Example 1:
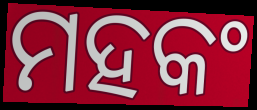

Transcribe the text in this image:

ମହକଂ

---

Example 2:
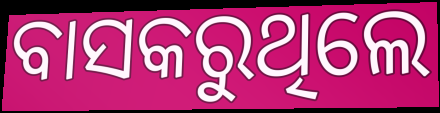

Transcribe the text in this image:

ବାସକରୁଥିଲେ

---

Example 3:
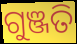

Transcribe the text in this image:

ଗୁଞ୍ଜତି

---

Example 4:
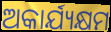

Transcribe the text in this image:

ଅକାର୍ଯ୍ୟକ୍ଷମ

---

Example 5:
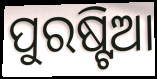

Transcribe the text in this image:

ପୁରଷ୍ଟିଆ